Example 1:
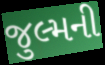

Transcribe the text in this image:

જુલ્મની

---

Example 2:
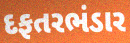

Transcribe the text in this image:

દફતરભંડાર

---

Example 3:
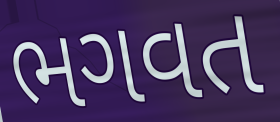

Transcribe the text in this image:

ભગવત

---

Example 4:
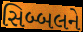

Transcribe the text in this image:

સિબ્બલને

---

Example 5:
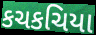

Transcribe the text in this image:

કચકચિયા